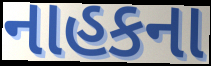
નાહકના